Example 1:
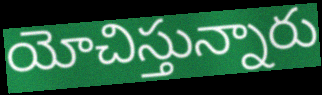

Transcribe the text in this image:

యోచిస్తున్నారు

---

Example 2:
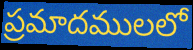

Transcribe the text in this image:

ప్రమాదములలో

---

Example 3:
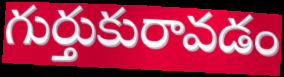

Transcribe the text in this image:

గుర్తుకురావడం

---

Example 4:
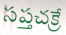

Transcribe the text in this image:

సప్తచక్రే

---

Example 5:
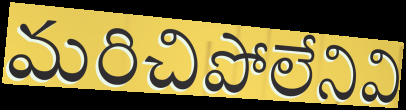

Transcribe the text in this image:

మరిచిపోలేనివి